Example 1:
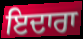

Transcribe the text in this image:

ਇਦਾਰਾ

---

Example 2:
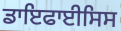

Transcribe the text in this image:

ਡਾਇਫਾਈਸਿਸ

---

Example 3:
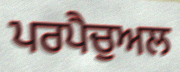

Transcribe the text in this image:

ਪਰਪੈਚੁਅਲ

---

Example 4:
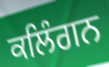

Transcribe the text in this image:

ਕਲਿੰਗਨ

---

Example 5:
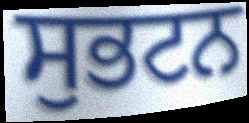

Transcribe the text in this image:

ਸੁਭਟਨ